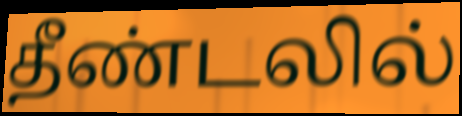
தீண்டலில்